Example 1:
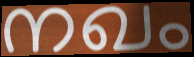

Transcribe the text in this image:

നഖം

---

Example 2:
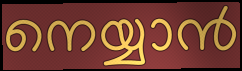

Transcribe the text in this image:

നെയ്യാൻ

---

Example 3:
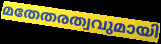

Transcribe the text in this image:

മതേതരത്വവുമായി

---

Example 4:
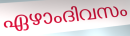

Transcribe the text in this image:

ഏഴാംദിവസം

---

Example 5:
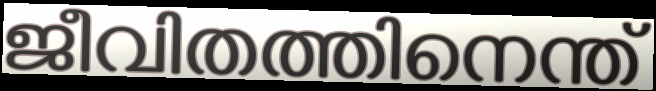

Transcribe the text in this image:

ജീവിതത്തിനെന്ത്